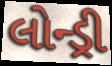
લોન્ડ્રી